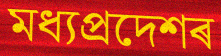
মধ্যপ্ৰদেশৰ